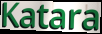
Katara